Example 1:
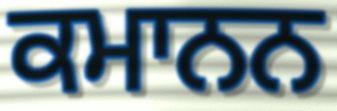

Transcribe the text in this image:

ਕਮਾਨਨ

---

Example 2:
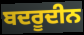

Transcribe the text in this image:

ਬਦਰੂਦੀਨ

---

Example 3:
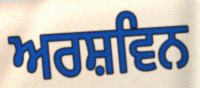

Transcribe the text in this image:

ਅਰਸ਼ਵਿਨ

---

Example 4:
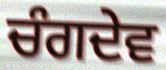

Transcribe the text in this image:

ਚੰਗਦੇਵ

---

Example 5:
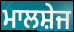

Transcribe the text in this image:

ਮਾਲਸ਼ੇਜ